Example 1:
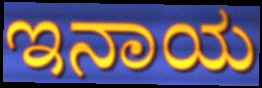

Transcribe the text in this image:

ಇನಾಯ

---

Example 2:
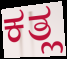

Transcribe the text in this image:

ಕತ್ಲ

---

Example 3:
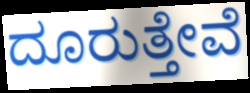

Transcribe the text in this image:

ದೂರುತ್ತೇವೆ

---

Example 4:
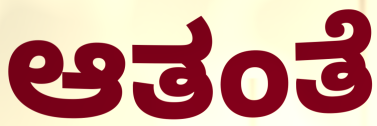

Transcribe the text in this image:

ಆತಂತೆ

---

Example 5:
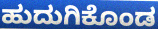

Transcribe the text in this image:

ಹುದುಗಿಕೊಂಡ